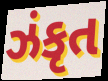
ઝંકૃત